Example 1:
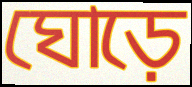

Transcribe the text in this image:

ঘোড়ে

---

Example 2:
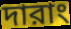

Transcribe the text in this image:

দারাং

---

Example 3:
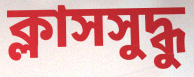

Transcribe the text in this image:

ক্লাসসুদ্ধু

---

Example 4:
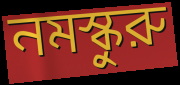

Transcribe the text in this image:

নমস্কুরু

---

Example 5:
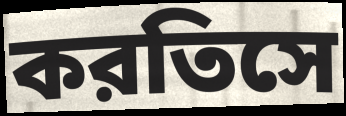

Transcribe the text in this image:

করতিসে